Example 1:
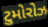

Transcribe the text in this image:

ટુમોરોઝ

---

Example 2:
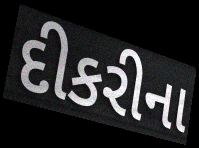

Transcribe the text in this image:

દીકરીના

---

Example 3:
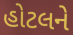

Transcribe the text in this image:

હોટલને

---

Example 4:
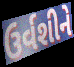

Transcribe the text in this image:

ઉર્વશીને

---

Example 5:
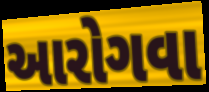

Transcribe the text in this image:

આરોગવા